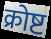
क्रोष्ट